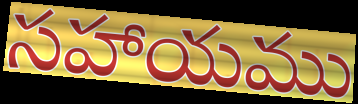
సహాయము